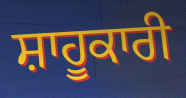
ਸ਼ਾਹੂਕਾਰੀ